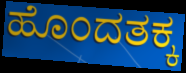
ಹೊಂದತಕ್ಕ